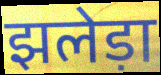
झलेड़ा